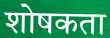
शोषकता